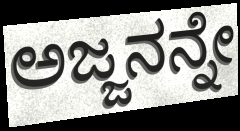
ಅಜ್ಜನನ್ನೇ